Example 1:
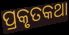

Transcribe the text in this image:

ପ୍ରକୃତକଥା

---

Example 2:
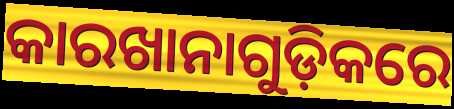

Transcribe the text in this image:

କାରଖାନାଗୁଡ଼ିକରେ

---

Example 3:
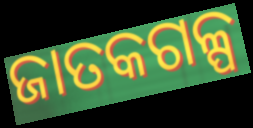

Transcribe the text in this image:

ଜାତକଗଳ୍ପ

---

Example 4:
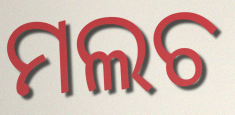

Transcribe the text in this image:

ମଲଚ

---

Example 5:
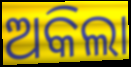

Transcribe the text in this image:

ଅକିଲା